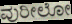
ವುರೀಲೋ